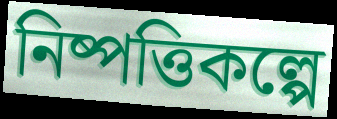
নিষ্পত্তিকল্পে